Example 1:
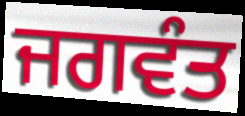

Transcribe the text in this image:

ਜਗਵੰਤ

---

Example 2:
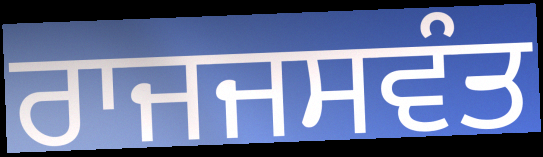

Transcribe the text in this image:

ਰਾਜਜਸਵੰਤ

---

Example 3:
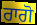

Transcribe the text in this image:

ਰਾਗੋ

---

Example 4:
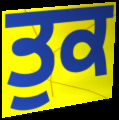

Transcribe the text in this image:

ਤੁਕ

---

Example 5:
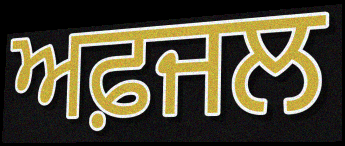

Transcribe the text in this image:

ਅਫ਼ਜਲ